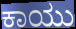
ಕಾಯು